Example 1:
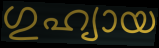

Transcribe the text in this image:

ഗുഹ്യായ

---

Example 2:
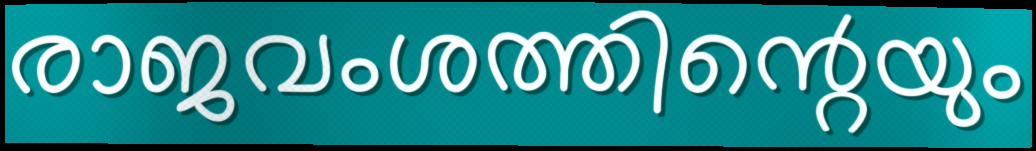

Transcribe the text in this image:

രാജവംശത്തിന്റെയും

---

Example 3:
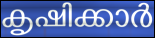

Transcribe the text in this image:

കൃഷിക്കാർ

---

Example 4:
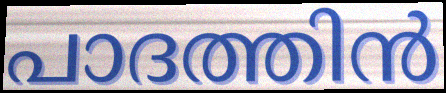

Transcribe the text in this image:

പാദത്തിൻ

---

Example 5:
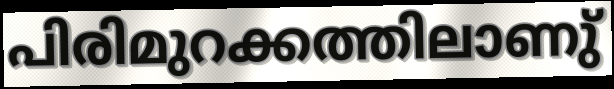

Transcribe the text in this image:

പിരിമുറക്കത്തിലാണു്